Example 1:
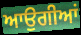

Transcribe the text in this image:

ਆਉਗੀਆਂ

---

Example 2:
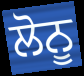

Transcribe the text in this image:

ਲੋਨੂ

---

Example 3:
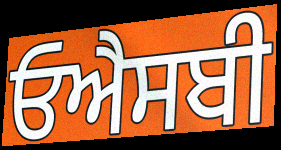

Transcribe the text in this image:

ਓਐਸਬੀ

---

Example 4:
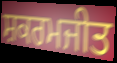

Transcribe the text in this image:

ਸ਼ਕਰਮਜੀਤ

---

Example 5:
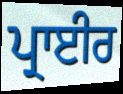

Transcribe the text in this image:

ਪ੍ਰਾਈਰ